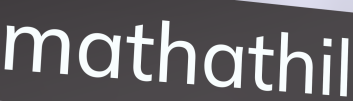
mathathil